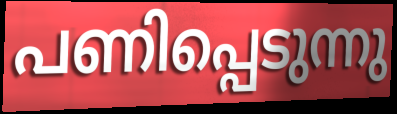
പണിപ്പെടുന്നു